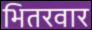
भितरवार